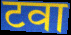
टवा